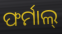
ଫର୍ମାଲ୍